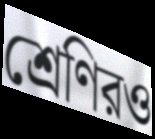
শ্রেণিরও